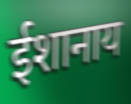
ईशानाय